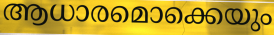
ആധാരമൊക്കെയും